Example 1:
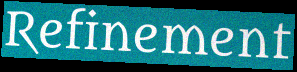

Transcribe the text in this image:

Refinement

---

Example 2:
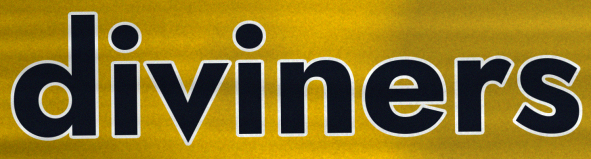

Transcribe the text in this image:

diviners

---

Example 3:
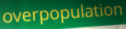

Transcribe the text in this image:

overpopulation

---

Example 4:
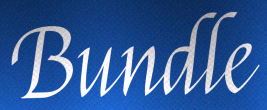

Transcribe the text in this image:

Bundle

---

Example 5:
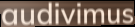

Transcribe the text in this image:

audivimus